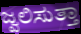
ಜ್ವಲಿಸುತ್ತಾ